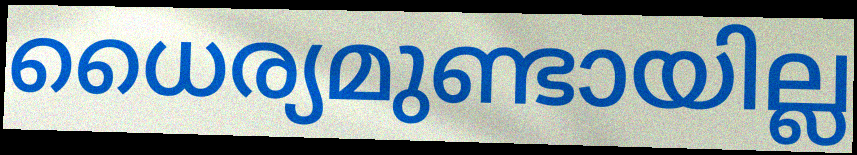
ധൈര്യമുണ്ടായില്ല